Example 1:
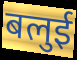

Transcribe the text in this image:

बलुई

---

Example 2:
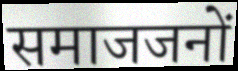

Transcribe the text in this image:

समाजजनों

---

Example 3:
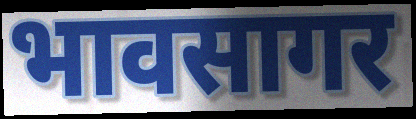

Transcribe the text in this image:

भावसागर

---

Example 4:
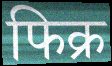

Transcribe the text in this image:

फिक्र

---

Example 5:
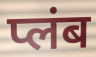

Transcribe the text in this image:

प्लंब